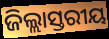
ଜିଲ୍ଲାସ୍ତରୀୟ